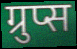
ग्रुप्स